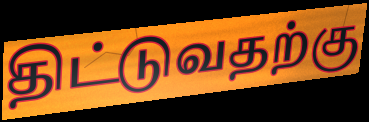
திட்டுவதற்கு